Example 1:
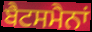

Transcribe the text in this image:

ਬੈਟਸਮੈਨਾਂ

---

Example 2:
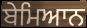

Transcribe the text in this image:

ਬੇਮਿਆਨ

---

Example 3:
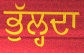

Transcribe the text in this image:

ਭੁੱਲ੍ਹਦਾ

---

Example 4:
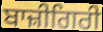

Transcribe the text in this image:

ਬਾਜ਼ੀਗਿਰੀ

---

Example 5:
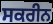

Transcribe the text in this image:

ਸਕਰੀਨ